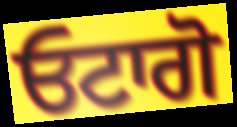
ਓਟਾਗੋ